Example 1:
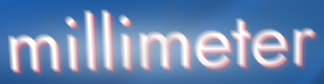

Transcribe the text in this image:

millimeter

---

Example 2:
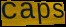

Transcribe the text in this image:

caps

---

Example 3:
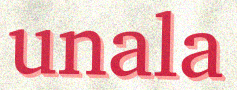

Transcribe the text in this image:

unala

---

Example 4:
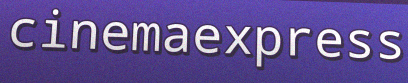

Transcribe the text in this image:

cinemaexpress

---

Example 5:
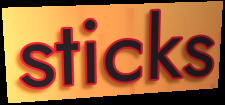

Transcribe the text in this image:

sticks